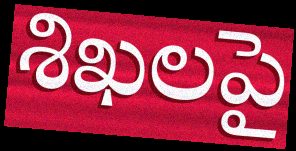
శిఖలపై